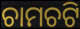
ଚାମଚଟି